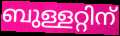
ബുള്ളറ്റിന്